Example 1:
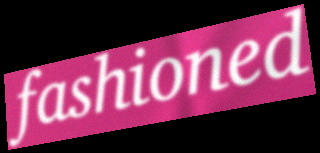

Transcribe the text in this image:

fashioned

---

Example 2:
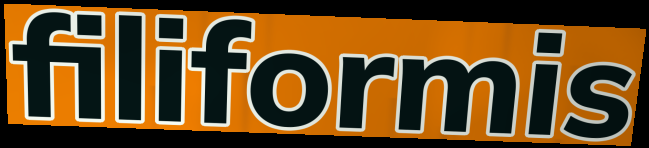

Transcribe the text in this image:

filiformis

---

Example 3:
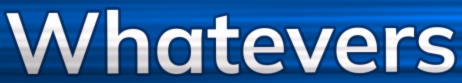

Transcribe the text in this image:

Whatevers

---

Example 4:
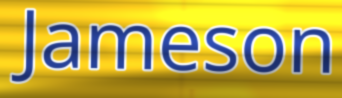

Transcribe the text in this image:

Jameson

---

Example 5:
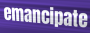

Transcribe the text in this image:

emancipate